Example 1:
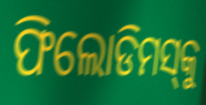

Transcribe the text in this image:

ଫିଲୋଡିମସ୍‌କୁ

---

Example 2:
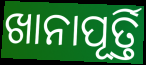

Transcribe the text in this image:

ଖାନାପୂର୍ତ୍ତି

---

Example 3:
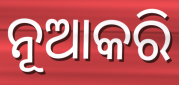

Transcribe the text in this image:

ନୂଆକରି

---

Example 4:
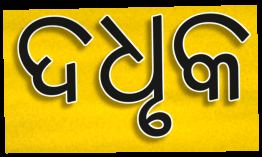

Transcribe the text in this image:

ଦଧୃକ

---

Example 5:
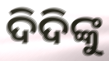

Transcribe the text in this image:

ଦିଦିଙ୍କୁ